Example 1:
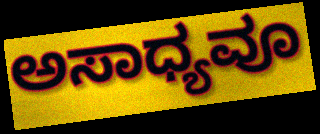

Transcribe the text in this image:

ಅಸಾಧ್ಯವೂ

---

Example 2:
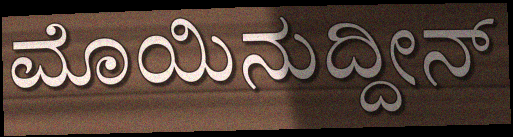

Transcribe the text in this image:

ಮೊಯಿನುದ್ದೀನ್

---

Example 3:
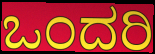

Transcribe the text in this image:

ಒಂದರಿ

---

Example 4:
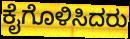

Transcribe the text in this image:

ಕೈಗೊಳಿಸಿದರು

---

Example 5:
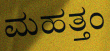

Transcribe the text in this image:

ಮಹತ್ತಂ